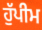
ਹੁੱਪੀਮ